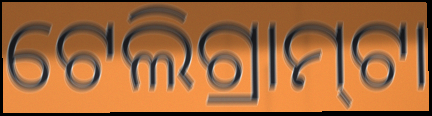
ଟେଲିଗ୍ରାମ୍‍ଟା